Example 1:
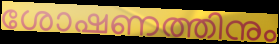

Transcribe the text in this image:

ശോഷണത്തിനും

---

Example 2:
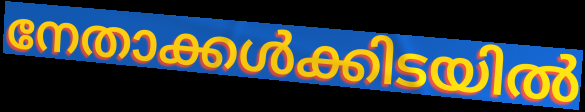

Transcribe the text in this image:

നേതാക്കൾക്കിടയിൽ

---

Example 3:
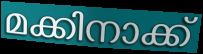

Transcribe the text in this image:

മക്കിനാക്ക്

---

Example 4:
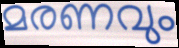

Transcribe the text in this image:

മരണവും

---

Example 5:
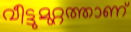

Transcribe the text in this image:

വീട്ടുമുറ്റത്താണ്